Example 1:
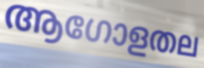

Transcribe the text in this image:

ആഗോളതല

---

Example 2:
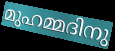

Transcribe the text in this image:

മുഹമ്മദിനു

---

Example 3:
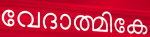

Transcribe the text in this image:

വേദാത്മികേ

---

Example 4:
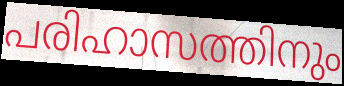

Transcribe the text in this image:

പരിഹാസത്തിനും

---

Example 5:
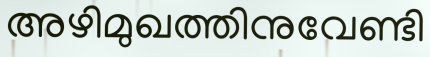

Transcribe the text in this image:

അഴിമുഖത്തിനുവേണ്ടി